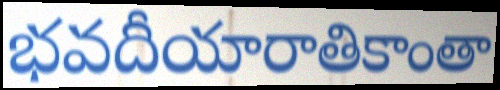
భవదీయారాతికాంతా